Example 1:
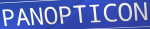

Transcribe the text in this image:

PANOPTICON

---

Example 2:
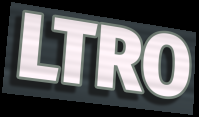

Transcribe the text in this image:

LTRO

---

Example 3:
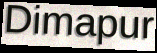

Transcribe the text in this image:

Dimapur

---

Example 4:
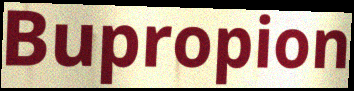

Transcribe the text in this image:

Bupropion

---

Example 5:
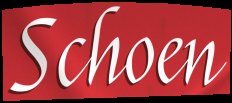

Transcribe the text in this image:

Schoen